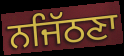
ਨਜਿੱਠਣਾ